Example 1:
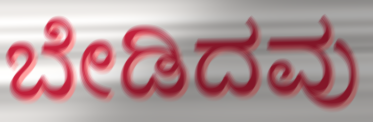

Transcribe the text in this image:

ಬೇಡಿದವು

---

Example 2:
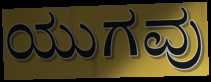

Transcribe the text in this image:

ಯುಗವು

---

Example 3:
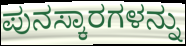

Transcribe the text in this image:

ಪುನಸ್ಕಾರಗಳನ್ನು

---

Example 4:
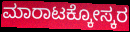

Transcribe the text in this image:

ಮಾರಾಟಕ್ಕೋಸ್ಕರ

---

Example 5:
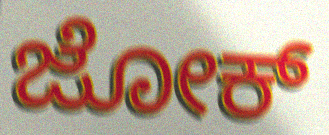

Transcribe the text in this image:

ಜೋಕ್